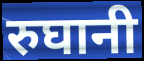
रुघानी